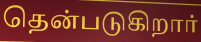
தென்படுகிறார்